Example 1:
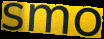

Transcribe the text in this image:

smo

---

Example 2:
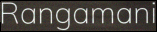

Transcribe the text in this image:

Rangamani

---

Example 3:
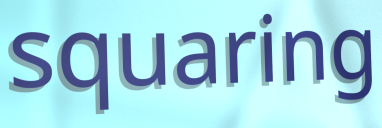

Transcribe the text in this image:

squaring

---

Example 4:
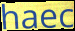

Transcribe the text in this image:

haec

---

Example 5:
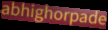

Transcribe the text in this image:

abhighorpade